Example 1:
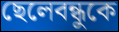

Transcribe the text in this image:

ছেলেবন্ধুকে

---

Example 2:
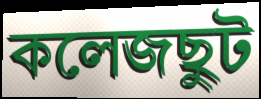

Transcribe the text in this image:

কলেজছুট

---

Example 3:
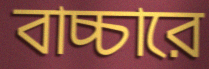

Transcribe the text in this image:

বাচ্চারে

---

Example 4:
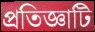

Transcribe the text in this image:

প্রতিজ্ঞাটি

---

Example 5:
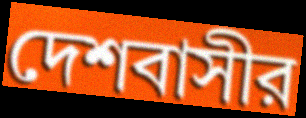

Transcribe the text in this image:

দেশবাসীর